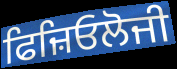
ਫਿਜ਼ਿਓਲੋਜੀ